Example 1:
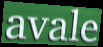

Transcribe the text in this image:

avale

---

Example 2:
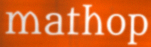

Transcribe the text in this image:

mathop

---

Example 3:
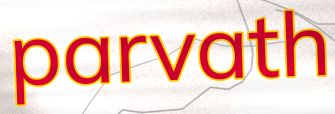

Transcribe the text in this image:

parvath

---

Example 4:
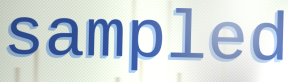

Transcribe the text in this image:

sampled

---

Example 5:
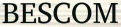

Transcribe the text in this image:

BESCOM